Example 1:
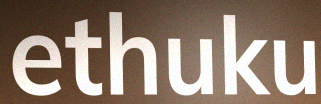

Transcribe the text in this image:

ethuku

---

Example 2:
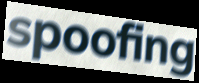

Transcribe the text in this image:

spoofing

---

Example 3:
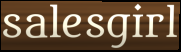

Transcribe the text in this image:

salesgirl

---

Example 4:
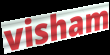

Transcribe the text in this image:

visham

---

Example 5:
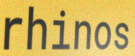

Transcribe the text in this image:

rhinos